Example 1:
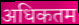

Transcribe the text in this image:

अधिकतम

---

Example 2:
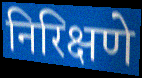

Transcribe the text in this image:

निरिक्षणे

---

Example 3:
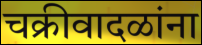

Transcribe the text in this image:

चक्रीवादळांना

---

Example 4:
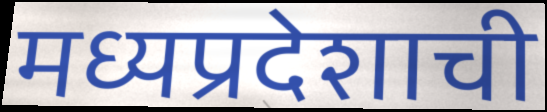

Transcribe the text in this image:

मध्यप्रदेशाची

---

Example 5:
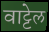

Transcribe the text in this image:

वाट्टेल